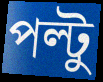
পল্টু